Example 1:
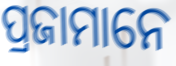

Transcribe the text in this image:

ପ୍ରଜାମାନେ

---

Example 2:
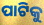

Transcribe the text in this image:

ପାଟିକୁ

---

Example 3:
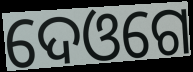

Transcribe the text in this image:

ଦେଓଗେ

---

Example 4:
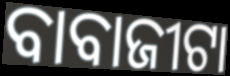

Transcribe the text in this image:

ବାବାଜୀଟା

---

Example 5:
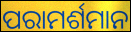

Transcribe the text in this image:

ପରାମର୍ଶମାନ